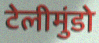
टेलीमुंडो